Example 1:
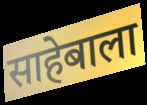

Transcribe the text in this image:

साहेबाला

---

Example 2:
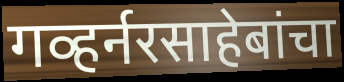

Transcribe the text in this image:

गव्हर्नरसाहेबांचा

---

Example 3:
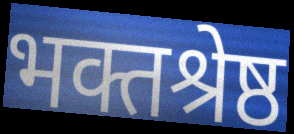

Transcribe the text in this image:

भक्तश्रेष्ठ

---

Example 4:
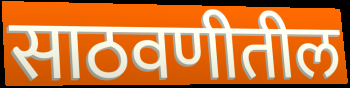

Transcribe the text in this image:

साठवणीतील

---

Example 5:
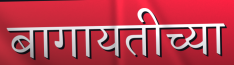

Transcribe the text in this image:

बागायतीच्या